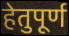
हेतुपूर्ण